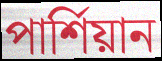
পার্শিয়ান